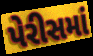
પેરીસમાં